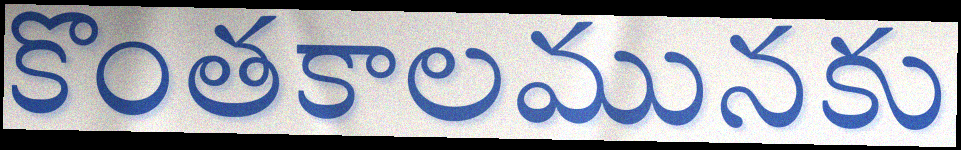
కొంతకాలమునకు